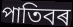
পাতিবৰ